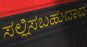
ಸಲ್ಲಿಸಬಹುದಾದ